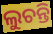
ଲୁଚନ୍ତି